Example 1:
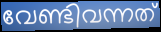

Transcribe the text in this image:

വേണ്ടിവന്നത്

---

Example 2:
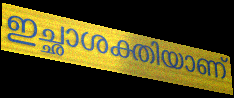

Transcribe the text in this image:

ഇച്ഛാശക്തിയാണ്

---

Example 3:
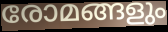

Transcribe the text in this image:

രോമങ്ങളും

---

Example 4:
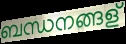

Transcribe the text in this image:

ബന്ധനങ്ങള്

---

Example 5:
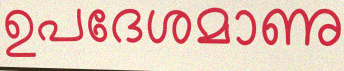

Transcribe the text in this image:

ഉപദേശമാണു